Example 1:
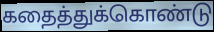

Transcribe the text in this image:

கதைத்துக்கொண்டு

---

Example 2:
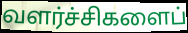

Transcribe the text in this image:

வளர்ச்சிகளைப்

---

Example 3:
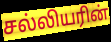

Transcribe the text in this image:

சல்லியரின்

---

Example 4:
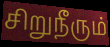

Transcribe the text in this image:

சிறுநீரும்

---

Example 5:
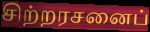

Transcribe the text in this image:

சிற்றரசனைப்